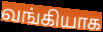
வங்கியாக